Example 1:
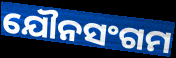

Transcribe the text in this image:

ଯୌନସଂଗମ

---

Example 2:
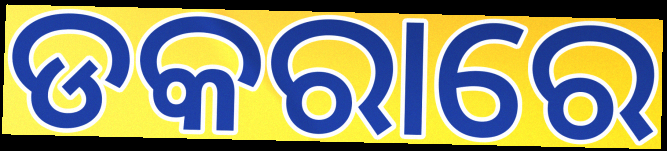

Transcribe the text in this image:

ଡକରାରେ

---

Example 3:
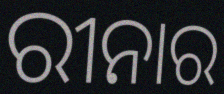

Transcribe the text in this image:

ରୀନାର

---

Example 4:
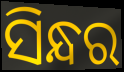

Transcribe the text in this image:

ସିନ୍ଧର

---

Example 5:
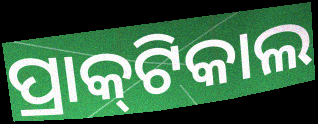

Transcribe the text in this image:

ପ୍ରାକ୍‌ଟିକାଲ